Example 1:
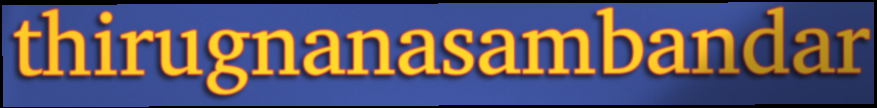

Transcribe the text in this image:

thirugnanasambandar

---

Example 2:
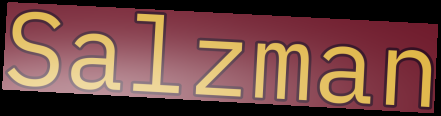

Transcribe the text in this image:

Salzman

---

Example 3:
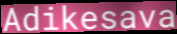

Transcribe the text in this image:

Adikesava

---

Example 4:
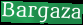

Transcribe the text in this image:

Bargaza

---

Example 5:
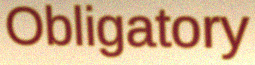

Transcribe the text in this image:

Obligatory